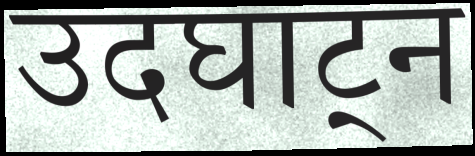
उदघाट्न